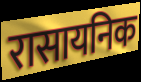
रासायनिक